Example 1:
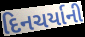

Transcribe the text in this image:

દિનચર્યાની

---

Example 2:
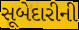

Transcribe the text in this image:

સૂબેદારીની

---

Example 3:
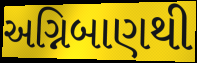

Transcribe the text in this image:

અગ્નિબાણથી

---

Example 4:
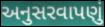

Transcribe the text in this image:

અનુસરવાપણું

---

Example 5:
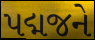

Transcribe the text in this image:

પદ્મજને